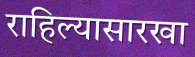
राहिल्यासारखा